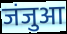
जंजुआ